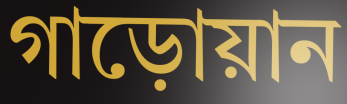
গাড়োয়ান